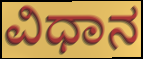
ವಿಧಾನ